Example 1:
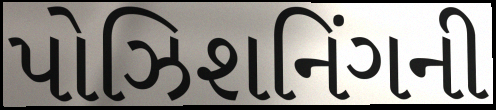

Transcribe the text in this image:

પોઝિશનિંગની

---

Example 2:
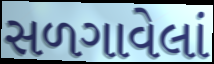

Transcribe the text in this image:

સળગાવેલાં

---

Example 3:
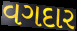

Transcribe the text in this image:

વગદાર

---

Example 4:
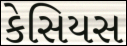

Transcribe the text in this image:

કેસિયસ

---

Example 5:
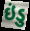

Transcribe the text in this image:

ઇંડુ